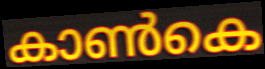
കാൺകെ